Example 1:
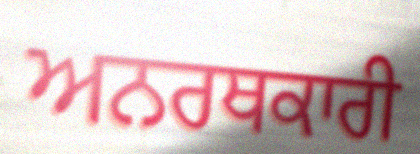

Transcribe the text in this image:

ਅਨਰਥਕਾਰੀ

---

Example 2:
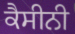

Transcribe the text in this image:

ਕੈਸੀਨੀ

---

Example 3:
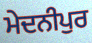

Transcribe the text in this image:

ਮੇਦਨੀਪੁਰ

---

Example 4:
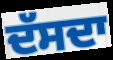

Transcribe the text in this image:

ਦੱਸਦਾ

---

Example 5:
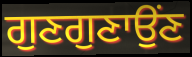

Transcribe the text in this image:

ਗੁਣਗੁਣਾਉਂਣ